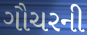
ગૌચરની